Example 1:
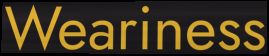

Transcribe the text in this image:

Weariness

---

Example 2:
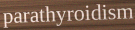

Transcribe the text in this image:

parathyroidism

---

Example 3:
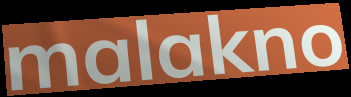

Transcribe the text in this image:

malakno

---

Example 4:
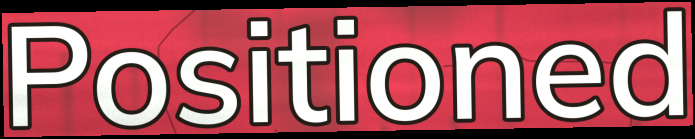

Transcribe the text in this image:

Positioned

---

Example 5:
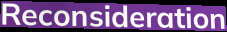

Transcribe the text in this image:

Reconsideration